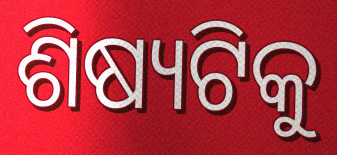
ଶିଷ୍ୟଟିକୁ